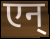
एन्